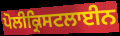
ਪੋਲੀਕ੍ਰਿਸਟਲਾਈਨ